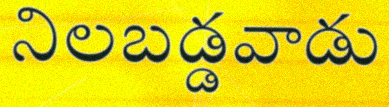
నిలబడ్డవాడు